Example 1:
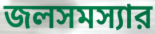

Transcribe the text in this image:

জলসমস্যার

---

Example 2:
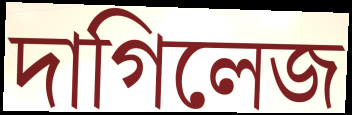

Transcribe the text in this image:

দাগিলেজ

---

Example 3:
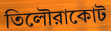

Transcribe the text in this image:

তিলৌরাকোট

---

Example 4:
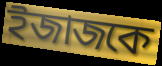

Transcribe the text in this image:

ইজাজকে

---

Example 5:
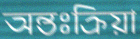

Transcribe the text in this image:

অন্তঃক্রিয়া